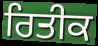
ਰਿਤੀਕ